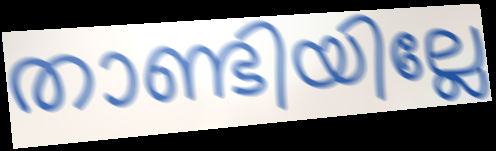
താണ്ടിയില്ലേ